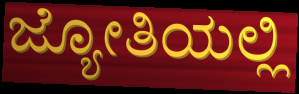
ಜ್ಯೋತಿಯಲ್ಲಿ